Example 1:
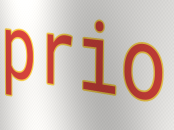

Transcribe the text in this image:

prio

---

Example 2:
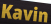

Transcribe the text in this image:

Kavin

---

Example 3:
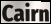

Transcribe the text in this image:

Cairn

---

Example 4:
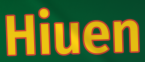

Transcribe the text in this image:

Hiuen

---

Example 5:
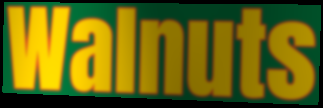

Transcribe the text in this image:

Walnuts